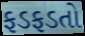
ફડફડતો